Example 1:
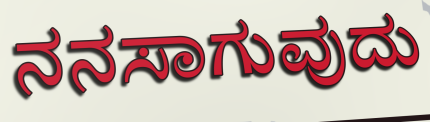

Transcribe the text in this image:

ನನಸಾಗುವುದು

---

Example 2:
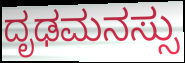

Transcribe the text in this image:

ದೃಢಮನಸ್ಸು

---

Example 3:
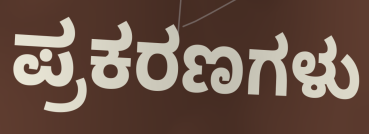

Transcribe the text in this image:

ಪ್ರಕರಣಗಳು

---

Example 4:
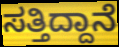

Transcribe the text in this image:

ಸತ್ತಿದ್ದಾನೆ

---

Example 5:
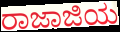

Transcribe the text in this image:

ರಾಜಾಜಿಯ